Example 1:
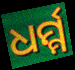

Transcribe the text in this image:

ଧର୍ମ୍ମ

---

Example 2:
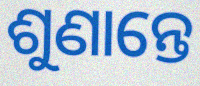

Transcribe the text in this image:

ଶୁଣାନ୍ତେ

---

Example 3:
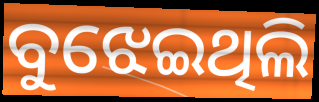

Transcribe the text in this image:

ବୁଝେଇଥିଲି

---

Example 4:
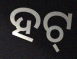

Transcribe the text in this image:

ହଟ୍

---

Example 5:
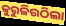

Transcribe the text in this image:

କୁରୁଳିଉଠିଲା